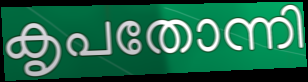
കൃപതോന്നി